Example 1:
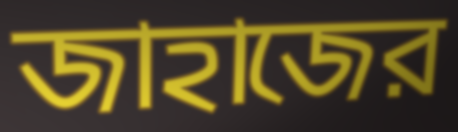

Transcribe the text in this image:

জাহাজের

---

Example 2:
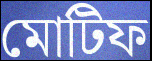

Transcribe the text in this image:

মোটিফ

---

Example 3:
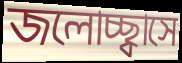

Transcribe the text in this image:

জলোচ্ছ্বাসে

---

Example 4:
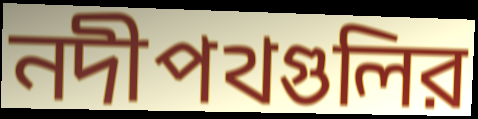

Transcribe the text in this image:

নদীপথগুলির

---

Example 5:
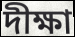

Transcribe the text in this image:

দীক্ষা